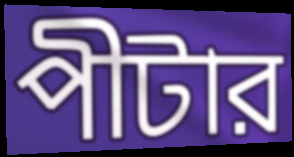
পীটার